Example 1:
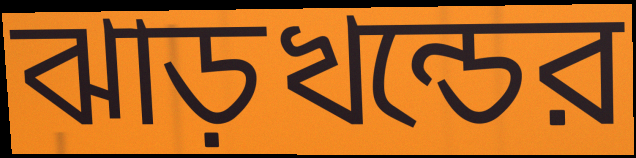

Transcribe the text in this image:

ঝাড়খন্ডের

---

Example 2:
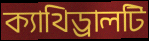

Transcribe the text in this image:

ক্যাথিড্রালটি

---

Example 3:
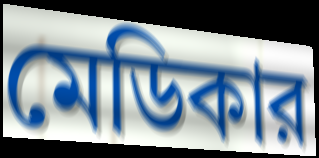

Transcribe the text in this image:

মেডিকার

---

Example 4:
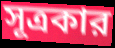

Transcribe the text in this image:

সূত্রকার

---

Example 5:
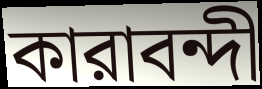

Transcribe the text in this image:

কারাবন্দী